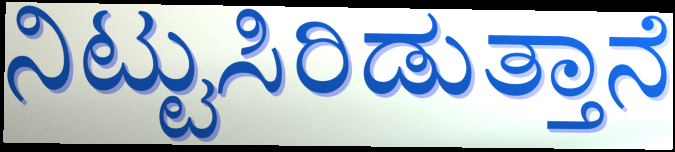
ನಿಟ್ಟುಸಿರಿಡುತ್ತಾನೆ